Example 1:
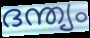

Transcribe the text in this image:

ദന്ത്യം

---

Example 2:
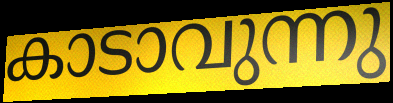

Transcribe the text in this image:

കാടാവുന്നു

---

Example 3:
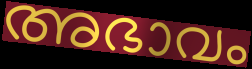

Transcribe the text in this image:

അഭാവം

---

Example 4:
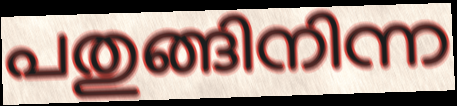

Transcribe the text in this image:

പതുങ്ങിനിന്ന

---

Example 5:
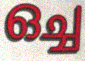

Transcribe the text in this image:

ഒച്ച